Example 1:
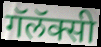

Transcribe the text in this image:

गॅलॅक्सी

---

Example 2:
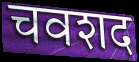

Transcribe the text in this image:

चवशद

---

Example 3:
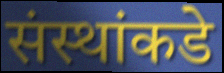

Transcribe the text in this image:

संस्थांकडे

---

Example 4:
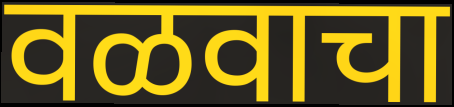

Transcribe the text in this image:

वळवाचा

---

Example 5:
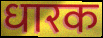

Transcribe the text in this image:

धारक